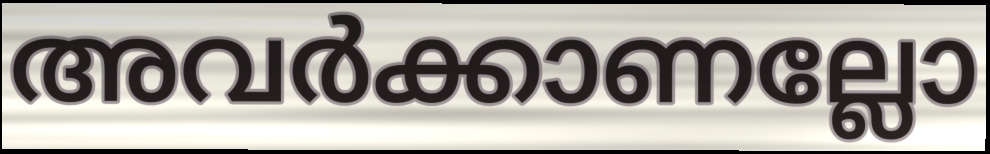
അവർക്കാണല്ലോ